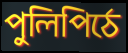
পুলিপিঠে